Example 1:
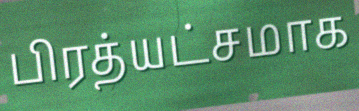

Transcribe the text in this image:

பிரத்யட்சமாக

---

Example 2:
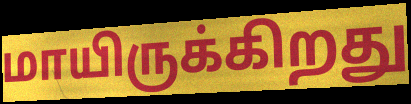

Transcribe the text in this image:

மாயிருக்கிறது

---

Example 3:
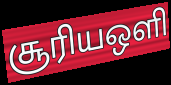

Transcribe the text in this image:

சூரியஒளி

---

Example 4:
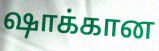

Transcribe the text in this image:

ஷாக்கான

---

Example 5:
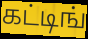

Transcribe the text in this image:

கட்டிங்